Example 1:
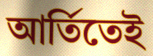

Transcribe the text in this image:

আর্তিতেই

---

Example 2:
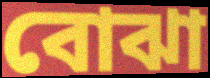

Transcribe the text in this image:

বোঝা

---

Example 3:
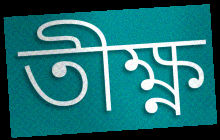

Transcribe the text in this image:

তীক্ষ্ণ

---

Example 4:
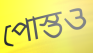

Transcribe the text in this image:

পোস্তও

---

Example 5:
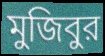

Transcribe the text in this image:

মুজিবুর